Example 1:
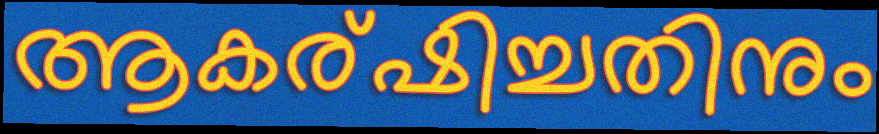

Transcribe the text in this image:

ആകര്ഷിച്ചതിനും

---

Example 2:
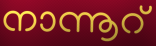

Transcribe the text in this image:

നാന്നൂറ്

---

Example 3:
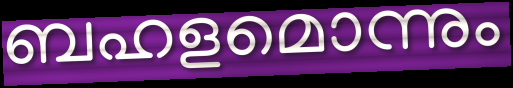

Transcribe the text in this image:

ബഹളമൊന്നും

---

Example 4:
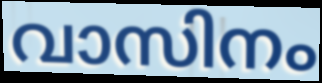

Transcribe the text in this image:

വാസിനം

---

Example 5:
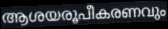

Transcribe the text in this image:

ആശയരൂപീകരണവും